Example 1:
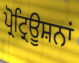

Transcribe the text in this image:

ਪ੍ਰੋਟ੍ਰਿਊਸ਼ਨਾਂ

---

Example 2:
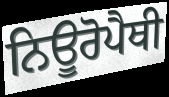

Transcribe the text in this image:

ਨਿਊਰੋਪੈਥੀ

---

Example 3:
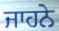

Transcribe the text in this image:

ਜਾਹਨੇ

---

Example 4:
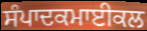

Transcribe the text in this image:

ਸੰਪਾਦਕਮਾਈਕਲ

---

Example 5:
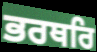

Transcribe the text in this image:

ਭਰਥਰਿ